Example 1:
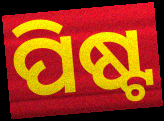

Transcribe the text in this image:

ପିଷ୍ଟ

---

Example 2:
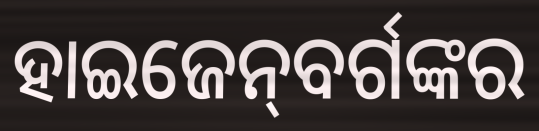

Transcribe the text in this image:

ହାଇଜେନ୍‌ବର୍ଗଙ୍କର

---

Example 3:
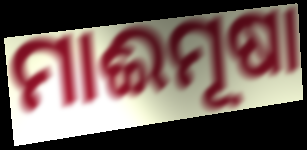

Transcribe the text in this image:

ମାଈମୂଷା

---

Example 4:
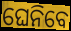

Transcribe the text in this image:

ଘେନିବେ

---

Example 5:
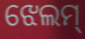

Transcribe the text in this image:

ଝେଲମ୍